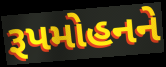
રૂપમોહનને